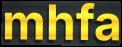
mhfa